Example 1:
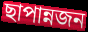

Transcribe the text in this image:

ছাপান্নজন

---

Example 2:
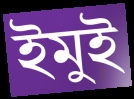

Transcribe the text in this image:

ইমুই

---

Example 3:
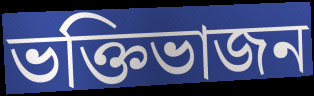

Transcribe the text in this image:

ভক্তিভাজন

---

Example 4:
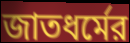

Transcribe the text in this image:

জাতধর্মের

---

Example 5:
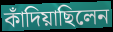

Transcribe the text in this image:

কাঁদিয়াছিলেন